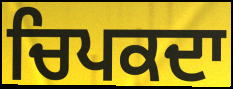
ਚਿਪਕਦਾ